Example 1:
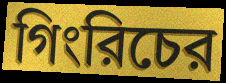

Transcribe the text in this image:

গিংরিচের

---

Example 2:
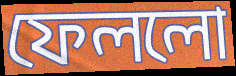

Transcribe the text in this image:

ফেললো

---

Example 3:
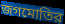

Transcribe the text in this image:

জগমোতির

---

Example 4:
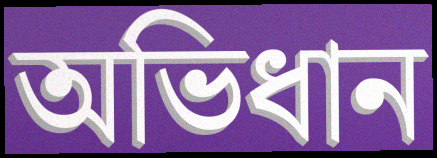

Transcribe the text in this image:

অভিধান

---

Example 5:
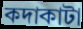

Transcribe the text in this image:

কদাকাটা